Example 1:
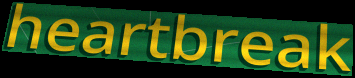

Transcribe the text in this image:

heartbreak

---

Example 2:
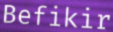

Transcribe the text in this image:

Befikir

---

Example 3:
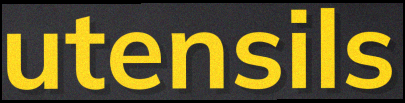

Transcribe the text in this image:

utensils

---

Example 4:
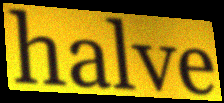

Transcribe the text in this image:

halve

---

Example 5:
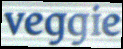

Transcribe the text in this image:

veggie